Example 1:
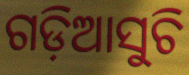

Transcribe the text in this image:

ଗଡ଼ିଆସୁଚି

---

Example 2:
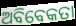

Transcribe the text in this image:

ଅବିବେକତା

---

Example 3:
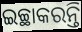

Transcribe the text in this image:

ଇଚ୍ଛାକରନ୍ତି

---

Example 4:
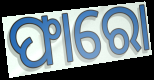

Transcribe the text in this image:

ଫାରୋ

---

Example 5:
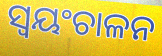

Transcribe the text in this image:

ସ୍ବୟଂଚାଳନ